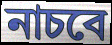
নাচবে